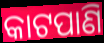
କାଟପାଣି